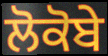
ਲੋਕੋਬੇ